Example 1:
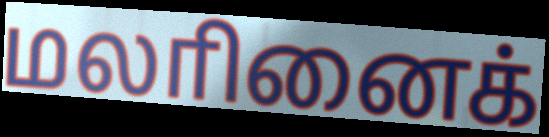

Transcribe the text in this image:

மலரினைக்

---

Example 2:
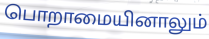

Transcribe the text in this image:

பொறாமையினாலும்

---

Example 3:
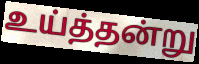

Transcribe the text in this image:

உய்த்தன்று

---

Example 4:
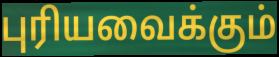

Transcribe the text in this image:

புரியவைக்கும்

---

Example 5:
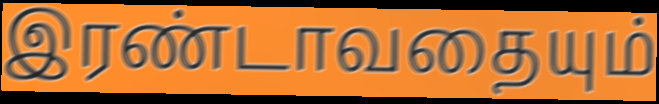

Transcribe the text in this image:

இரண்டாவதையும்